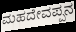
ಮಹದೇವಪ್ಪನ